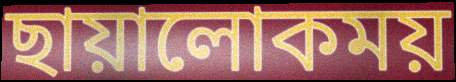
ছায়ালোকময়